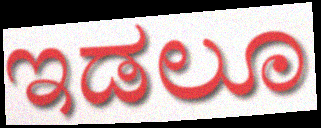
ಇಡಲೂ